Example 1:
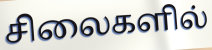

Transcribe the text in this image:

சிலைகளில்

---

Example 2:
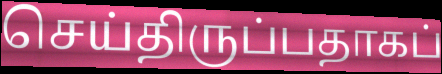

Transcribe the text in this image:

செய்திருப்பதாகப்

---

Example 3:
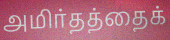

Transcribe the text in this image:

அமிர்தத்தைக்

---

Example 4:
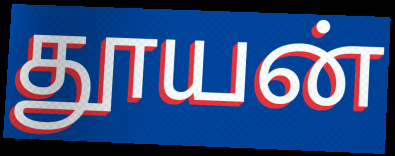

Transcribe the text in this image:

தூயன்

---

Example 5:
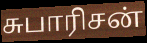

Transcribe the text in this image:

சுபாரிசன்